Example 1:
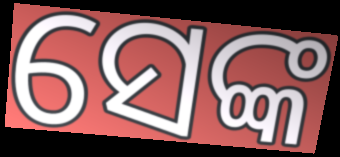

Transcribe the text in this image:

ସେଙ୍କ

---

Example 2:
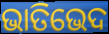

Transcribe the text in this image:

ଭାତିଭେଦ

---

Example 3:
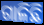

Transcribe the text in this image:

ଗାଳିଛି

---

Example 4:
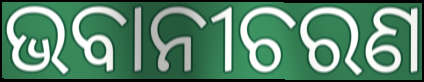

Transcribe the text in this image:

ଭବାନୀଚରଣ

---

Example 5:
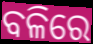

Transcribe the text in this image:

ବଳିରେ